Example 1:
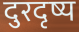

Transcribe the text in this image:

दुरदृष्य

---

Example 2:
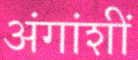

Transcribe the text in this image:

अंगांशीं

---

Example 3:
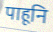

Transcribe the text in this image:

पाहूनि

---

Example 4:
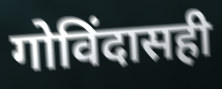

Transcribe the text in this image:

गोविंदासही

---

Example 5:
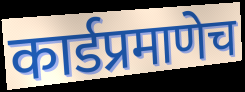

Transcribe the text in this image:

कार्डप्रमाणेच